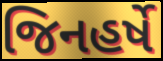
જિનહર્ષે